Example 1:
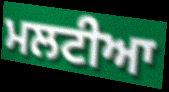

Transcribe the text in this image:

ਮਲਟੀਆ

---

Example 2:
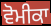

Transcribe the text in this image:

ਵੋਮੀਕਾ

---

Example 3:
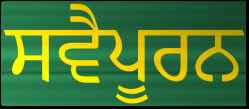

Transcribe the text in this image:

ਸਵੈਪੂਰਨ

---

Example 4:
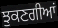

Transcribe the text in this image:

ਝੁਕਣਗੀਆਂ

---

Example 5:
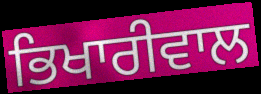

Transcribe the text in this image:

ਭਿਖਾਰੀਵਾਲ